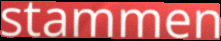
stammen